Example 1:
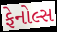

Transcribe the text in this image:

ફેનોલ્સ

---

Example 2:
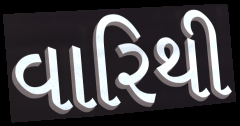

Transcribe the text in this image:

વારિથી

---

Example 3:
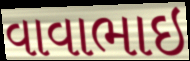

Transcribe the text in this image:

વાવાભાઇ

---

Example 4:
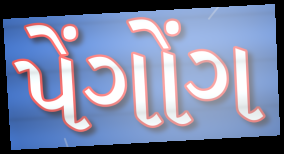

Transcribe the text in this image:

પેંગોંગ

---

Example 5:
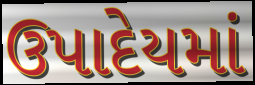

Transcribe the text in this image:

ઉપાદેયમાં